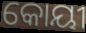
କୋୟୀ